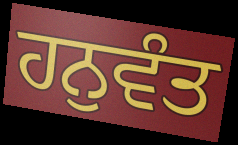
ਹਨੁਵੰਤ